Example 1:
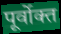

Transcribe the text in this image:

पूर्वोक्‍त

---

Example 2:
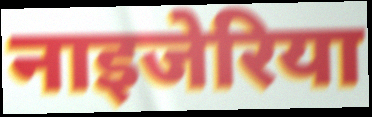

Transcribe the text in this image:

नाइजेरिया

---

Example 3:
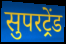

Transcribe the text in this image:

सुपरट्रेंड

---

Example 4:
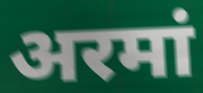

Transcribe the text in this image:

अरमां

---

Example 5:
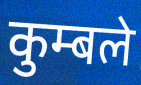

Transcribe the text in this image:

कुम्बले